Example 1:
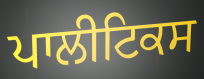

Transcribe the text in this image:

ਪਾਲੀਟਿਕਸ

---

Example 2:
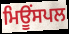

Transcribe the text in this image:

ਮਿਊਂਸਪਲ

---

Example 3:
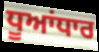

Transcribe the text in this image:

ਧੂਆਂਧਾਰ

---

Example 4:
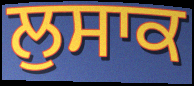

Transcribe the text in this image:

ਲੁਸਾਕ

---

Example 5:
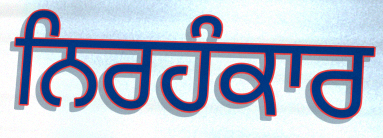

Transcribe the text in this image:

ਨਿਰਹੰਕਾਰ